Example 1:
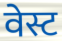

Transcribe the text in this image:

वेस्ट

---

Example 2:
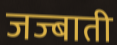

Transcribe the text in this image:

जज्बाती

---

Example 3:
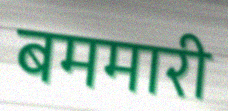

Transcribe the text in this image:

बममारी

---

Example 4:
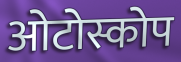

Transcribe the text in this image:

ओटोस्कोप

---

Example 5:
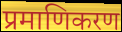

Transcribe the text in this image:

प्रमाणिकरण